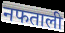
नफताली